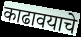
काढावयाचे